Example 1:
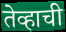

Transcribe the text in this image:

तेव्हाची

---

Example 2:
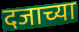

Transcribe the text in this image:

दजाच्या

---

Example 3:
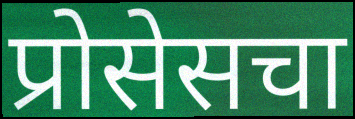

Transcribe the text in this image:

प्रोसेसचा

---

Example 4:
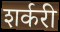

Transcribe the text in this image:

शर्करी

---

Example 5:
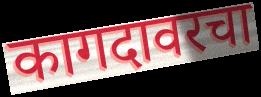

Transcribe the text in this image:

कागदावरचा